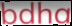
bdha